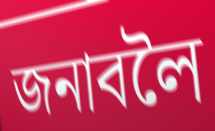
জনাবলৈ